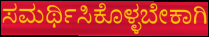
ಸಮರ್ಥಿಸಿಕೊಳ್ಳಬೇಕಾಗಿ